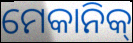
ମେକାନିକ୍